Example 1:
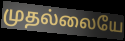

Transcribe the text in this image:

முதல்லையே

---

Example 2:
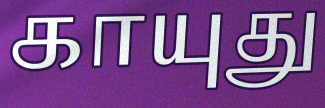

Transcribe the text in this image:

காயுது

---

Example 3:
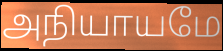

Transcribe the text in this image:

அநியாயமே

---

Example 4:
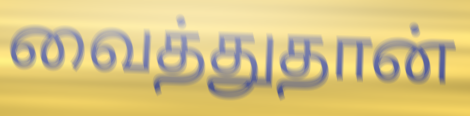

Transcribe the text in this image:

வைத்துதான்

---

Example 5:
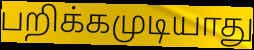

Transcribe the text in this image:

பறிக்கமுடியாது